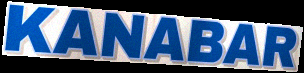
KANABAR